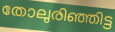
തോലുരിഞ്ഞിട്ട